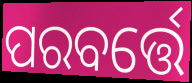
ପରବର୍ତ୍ତେ